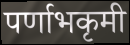
पर्णाभकृमी